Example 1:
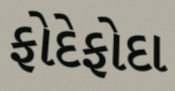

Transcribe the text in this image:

ફોદેફોદા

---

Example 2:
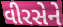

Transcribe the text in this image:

વીરસેને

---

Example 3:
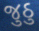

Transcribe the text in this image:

જુઠુ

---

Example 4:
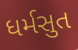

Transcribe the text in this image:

ધર્મસુત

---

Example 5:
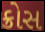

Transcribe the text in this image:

ક્રોસ